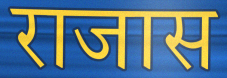
राजास